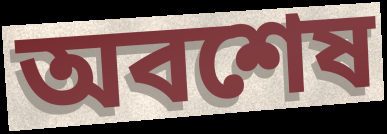
অবশেষ